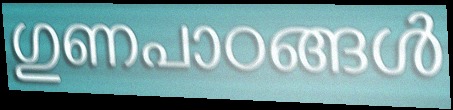
ഗുണപാഠങ്ങൾ